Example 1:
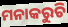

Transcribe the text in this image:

ମନାକରୁଚି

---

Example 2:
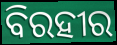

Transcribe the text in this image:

ବିରହୀର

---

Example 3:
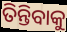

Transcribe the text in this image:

ତିନ୍ତିବାକୁ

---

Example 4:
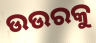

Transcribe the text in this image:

ଉଉରକୁ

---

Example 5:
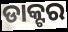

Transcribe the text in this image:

ଡାକ୍ଟର